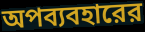
অপব্যবহারের